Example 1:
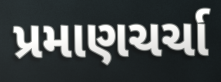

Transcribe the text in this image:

પ્રમાણચર્ચા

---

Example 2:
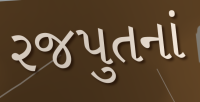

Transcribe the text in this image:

રજપુતનાં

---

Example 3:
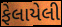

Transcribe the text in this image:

ફેલાયેલી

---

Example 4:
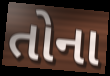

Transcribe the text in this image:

તોના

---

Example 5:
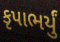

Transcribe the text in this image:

કૃપાભર્યું